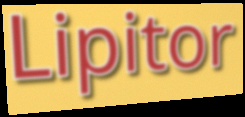
Lipitor